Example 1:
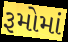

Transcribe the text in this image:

રૂમોમાં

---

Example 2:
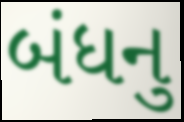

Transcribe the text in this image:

બંધનુ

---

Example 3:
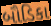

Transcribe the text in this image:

બૌડિકા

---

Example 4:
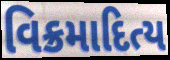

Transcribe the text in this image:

વિક્રમાદિત્ય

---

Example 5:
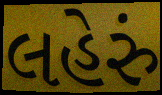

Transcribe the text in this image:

લહેરું